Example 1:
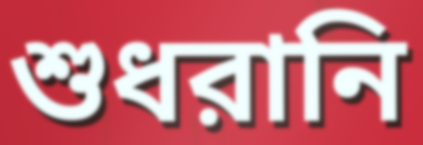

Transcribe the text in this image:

শুধরানি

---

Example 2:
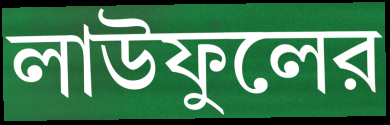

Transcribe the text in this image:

লাউফুলের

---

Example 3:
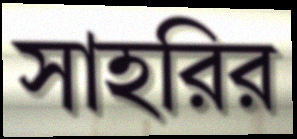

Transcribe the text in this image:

সাহরির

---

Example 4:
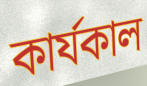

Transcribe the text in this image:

কার্যকাল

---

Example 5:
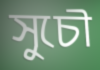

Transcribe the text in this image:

সুচৌ